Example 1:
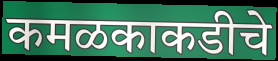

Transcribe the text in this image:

कमळकाकडीचे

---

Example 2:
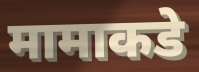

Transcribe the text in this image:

मामाकडे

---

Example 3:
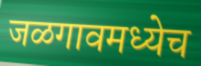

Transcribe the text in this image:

जळगावमध्येच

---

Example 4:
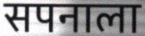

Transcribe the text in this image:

सपनाला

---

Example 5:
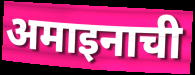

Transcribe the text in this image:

अमाइनाची